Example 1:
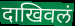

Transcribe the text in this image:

दाखिवलं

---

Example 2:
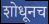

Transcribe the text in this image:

शोधूनच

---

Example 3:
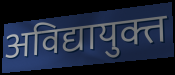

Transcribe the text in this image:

अविद्यायुक्त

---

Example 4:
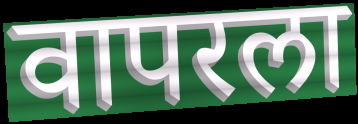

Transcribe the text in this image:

वापरला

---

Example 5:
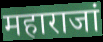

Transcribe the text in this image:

महाराजां